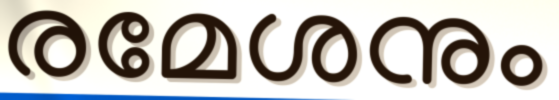
രമേശനും